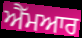
ਐੱਮਆਰ